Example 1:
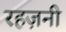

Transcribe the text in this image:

रहज़नी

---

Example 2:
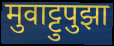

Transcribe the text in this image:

मुवाट्टुपुझा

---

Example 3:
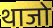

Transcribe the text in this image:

थाजो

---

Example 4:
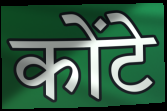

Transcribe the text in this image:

कोंटे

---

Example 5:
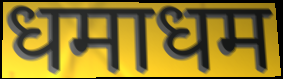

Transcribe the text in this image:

धमाधम